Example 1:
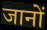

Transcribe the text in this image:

जानों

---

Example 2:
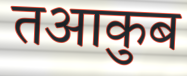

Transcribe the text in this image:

तआकुब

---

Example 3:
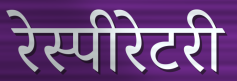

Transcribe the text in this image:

रेस्पीरेटरी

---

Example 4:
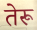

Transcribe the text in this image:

तेरू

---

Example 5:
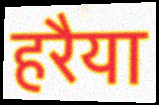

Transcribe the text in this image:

हरैया